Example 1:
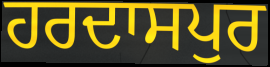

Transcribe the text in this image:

ਹਰਦਾਸਪੁਰ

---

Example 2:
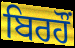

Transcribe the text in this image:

ਬਿਰਹੌਂ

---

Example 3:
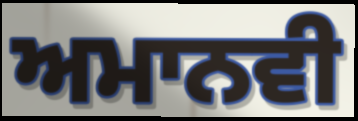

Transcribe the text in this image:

ਅਮਾਨਵੀ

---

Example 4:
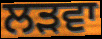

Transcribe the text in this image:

ਲੜਵਾ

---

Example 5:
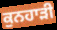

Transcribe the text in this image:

ਕੁਨਹਾੜੀ